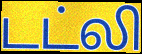
டட்லி